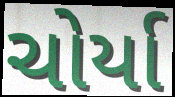
ચોર્યા